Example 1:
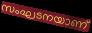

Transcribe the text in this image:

സംഘടനയാണ്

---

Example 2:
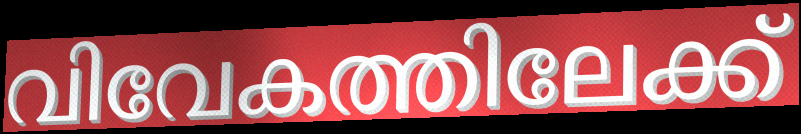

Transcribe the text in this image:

വിവേകത്തിലേക്ക്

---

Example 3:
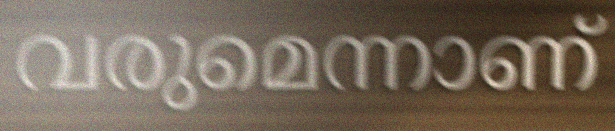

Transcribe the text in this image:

വരുമെന്നാണ്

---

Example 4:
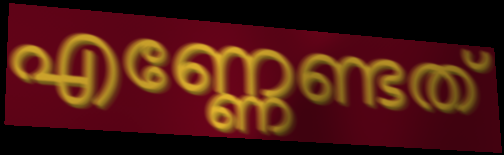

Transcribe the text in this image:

എണ്ണേണ്ടത്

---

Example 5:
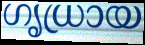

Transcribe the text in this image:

ഗൃധ്രായ